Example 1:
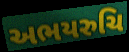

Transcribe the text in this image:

અભયરુચિ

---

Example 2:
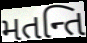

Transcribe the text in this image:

મતન્તિ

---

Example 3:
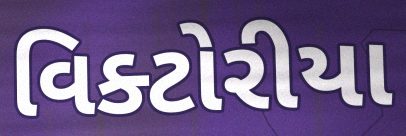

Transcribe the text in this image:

વિક્ટોરીયા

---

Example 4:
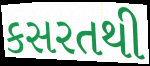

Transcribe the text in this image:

કસરતથી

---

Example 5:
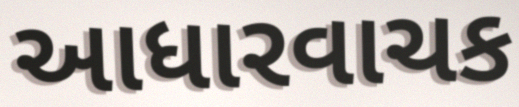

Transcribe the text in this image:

આધારવાચક